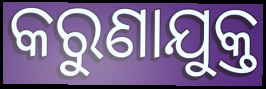
କରୁଣାଯୁକ୍ତ